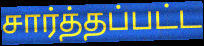
சார்த்தப்பட்ட